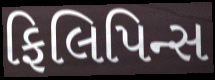
ફિલિપિન્સ